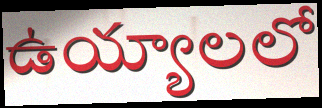
ఉయ్యాలలో